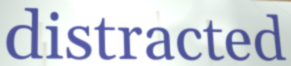
distracted